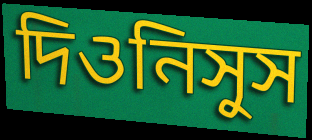
দিওনিসুস